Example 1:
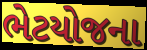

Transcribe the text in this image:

ભેટયોજના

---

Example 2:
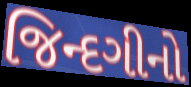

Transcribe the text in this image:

જિન્દગીનો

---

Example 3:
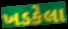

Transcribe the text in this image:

ખડકેલા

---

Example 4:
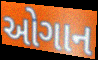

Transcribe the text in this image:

ઓગાન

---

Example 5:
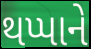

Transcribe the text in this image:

થપ્પાને